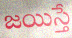
జయిస్తే